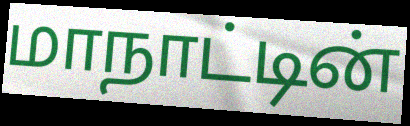
மாநாட்டின்